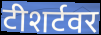
टीशर्टवर